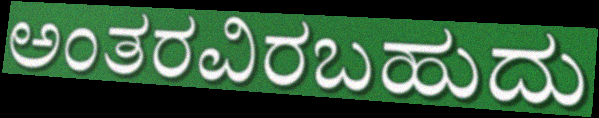
ಅಂತರವಿರಬಹುದು